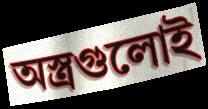
অস্ত্রগুলোই